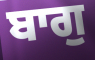
ਬਾਗੁ